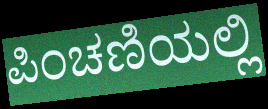
ಪಿಂಚಣಿಯಲ್ಲಿ